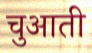
चुआती